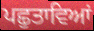
ਪਛੁਤਾਵਿਆਂ